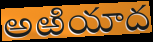
అఱియాద